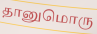
தானுமொரு